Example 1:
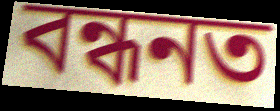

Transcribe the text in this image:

বন্ধনত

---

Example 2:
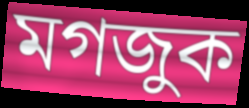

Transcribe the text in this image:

মগজুক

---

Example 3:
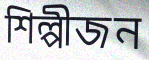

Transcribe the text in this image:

শিল্পীজন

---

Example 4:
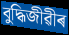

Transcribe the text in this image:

বুদ্ধিজীৱীৰ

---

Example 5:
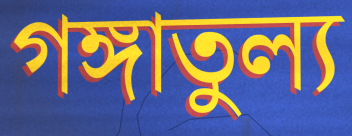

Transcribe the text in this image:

গঙ্গাতুল্য